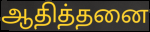
ஆதித்தனை